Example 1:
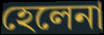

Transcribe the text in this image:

হেলেনা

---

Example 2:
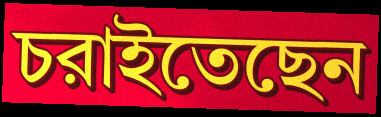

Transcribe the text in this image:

চরাইতেছেন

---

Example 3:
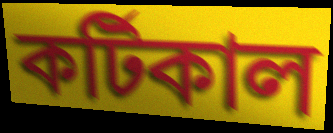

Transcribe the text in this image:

কর্টিকাল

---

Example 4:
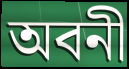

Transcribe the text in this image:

অবনী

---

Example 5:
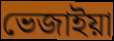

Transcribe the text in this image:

ভেজাইয়া